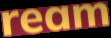
ream